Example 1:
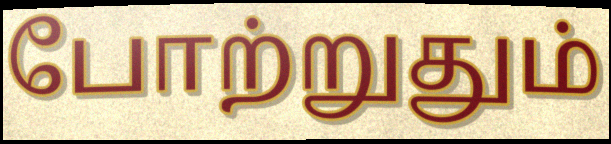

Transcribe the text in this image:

போற்றுதும்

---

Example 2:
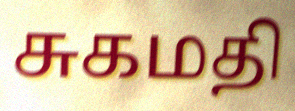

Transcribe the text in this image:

சுகமதி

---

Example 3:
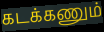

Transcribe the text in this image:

கடக்கணும்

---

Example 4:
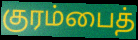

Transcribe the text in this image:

குரம்பைத்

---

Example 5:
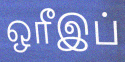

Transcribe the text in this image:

ஒரீஇப்